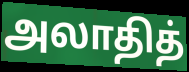
அலாதித்